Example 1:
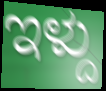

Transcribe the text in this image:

ಇಳ್ದು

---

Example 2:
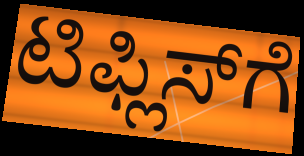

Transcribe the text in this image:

ಟಿಫ್ಲಿಸ್‍ಗೆ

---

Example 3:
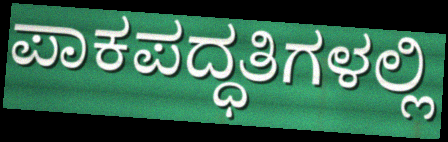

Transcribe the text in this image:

ಪಾಕಪದ್ಧತಿಗಳಲ್ಲಿ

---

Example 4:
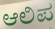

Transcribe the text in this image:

ಆಲಿಪ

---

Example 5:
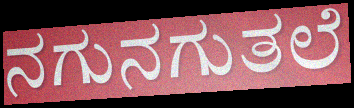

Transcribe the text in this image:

ನಗುನಗುತಲೆ